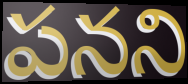
పనని